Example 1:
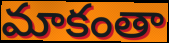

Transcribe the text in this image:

మాకంతా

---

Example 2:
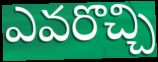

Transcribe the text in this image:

ఎవరొచ్చి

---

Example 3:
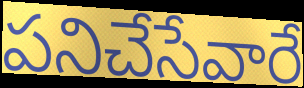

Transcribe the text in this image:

పనిచేసేవారే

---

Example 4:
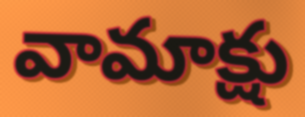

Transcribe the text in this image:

వామాక్షు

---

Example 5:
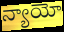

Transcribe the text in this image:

న్యాయో